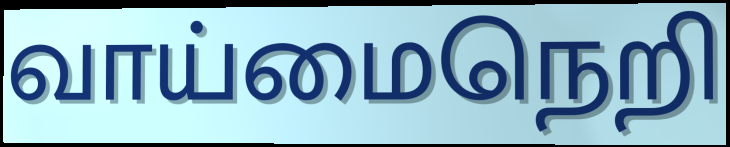
வாய்மைநெறி